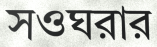
সওঘরার